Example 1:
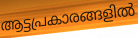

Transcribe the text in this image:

ആട്ടപ്രകാരങ്ങളിൽ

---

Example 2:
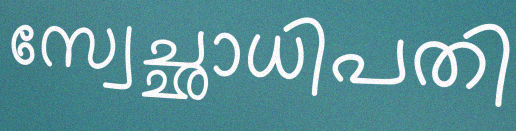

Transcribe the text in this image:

സ്വേച്ഛാധിപതി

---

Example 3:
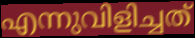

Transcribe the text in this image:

എന്നുവിളിച്ചത്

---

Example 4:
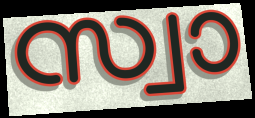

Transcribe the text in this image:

സ്വാ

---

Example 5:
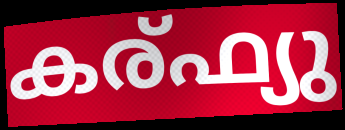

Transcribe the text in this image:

കര്ഫ്യു